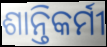
ଶାନ୍ତିକର୍ମୀ